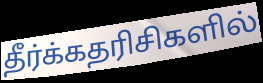
தீர்க்கதரிசிகளில்